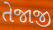
તેજાજી